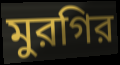
মুরগির